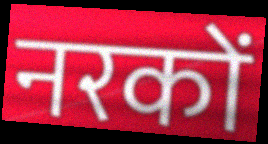
नरकों